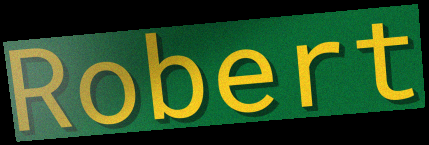
Robert